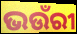
ଭଉଁରୀ